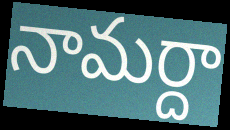
నామర్దా